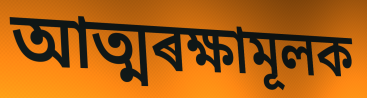
আত্মৰক্ষামূলক